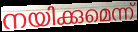
നയിക്കുമെന്ന്